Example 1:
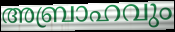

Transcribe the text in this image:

അബ്രാഹവും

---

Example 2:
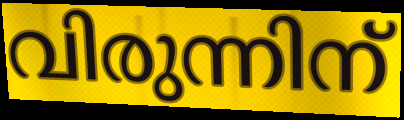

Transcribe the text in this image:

വിരുന്നിന്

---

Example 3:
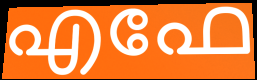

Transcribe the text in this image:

എഫേ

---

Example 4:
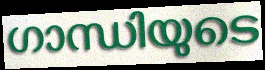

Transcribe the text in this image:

ഗാന്ധിയുടെ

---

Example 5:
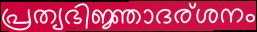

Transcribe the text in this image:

പ്രത്യഭിജ്ഞാദര്ശനം